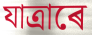
যাত্ৰাৰে